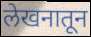
लेखनातून